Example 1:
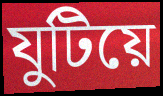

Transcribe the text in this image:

যুটিয়ে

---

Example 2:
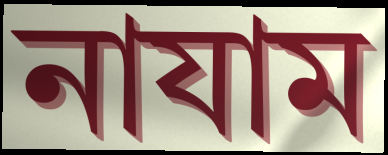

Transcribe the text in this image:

নাযাম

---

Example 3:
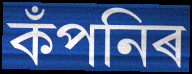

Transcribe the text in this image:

কঁপনিৰ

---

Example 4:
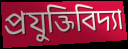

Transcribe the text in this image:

প্ৰযুক্তিবিদ্যা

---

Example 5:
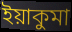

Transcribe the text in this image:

ইয়াকুমা